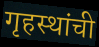
गृहस्थांची